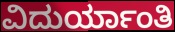
ವಿದುರ್ಯಾಂತಿ